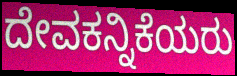
ದೇವಕನ್ನಿಕೆಯರು